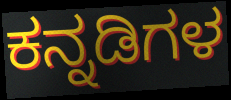
ಕನ್ನಡಿಗಳ